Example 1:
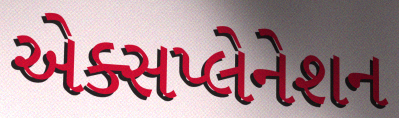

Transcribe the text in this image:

એક્સપ્લેનેશન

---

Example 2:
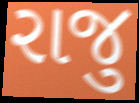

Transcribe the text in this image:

રાજુ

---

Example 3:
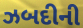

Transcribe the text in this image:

ઝબદીની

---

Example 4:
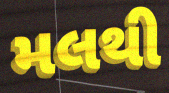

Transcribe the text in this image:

મલથી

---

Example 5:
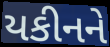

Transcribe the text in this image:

યકીનને